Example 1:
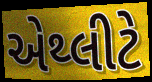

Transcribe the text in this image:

એથ્લીટે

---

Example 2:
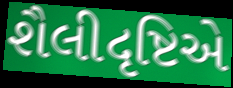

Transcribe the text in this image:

શૈલીદૃષ્ટિએ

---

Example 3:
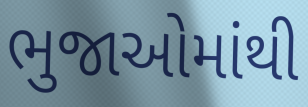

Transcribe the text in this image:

ભુજાઓમાંથી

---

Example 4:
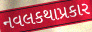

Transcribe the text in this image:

નવલકથાપ્રકાર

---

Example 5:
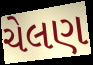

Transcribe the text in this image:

ચેલણ